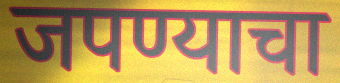
जपण्याचा